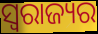
ସ୍ବରାଜ୍ୟର